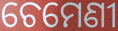
ଚେମେଣୀ